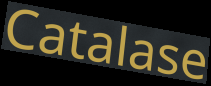
Catalase